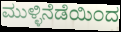
ಮುಳ್ಳಿನೆಡೆಯಿಂದ